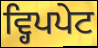
ਵ੍ਹਿਪਪੇਟ